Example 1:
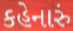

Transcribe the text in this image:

કહેનારું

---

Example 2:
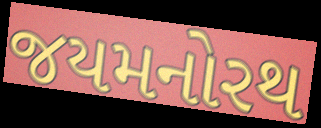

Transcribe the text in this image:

જયમનોરથ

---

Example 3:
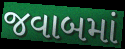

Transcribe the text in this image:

જવાબમાં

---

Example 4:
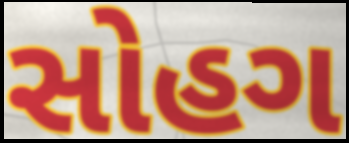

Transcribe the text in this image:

સોહગ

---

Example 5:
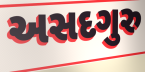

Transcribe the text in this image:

અસદગુરુ